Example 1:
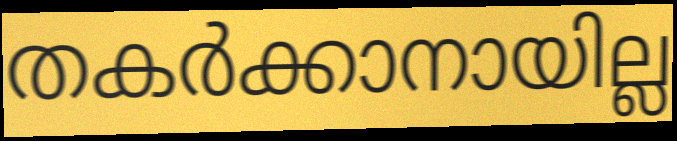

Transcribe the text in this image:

തകർക്കാനായില്ല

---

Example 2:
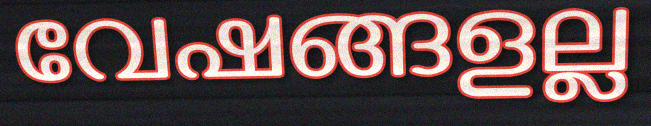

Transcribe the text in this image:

വേഷങ്ങളല്ല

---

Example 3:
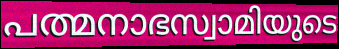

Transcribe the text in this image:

പത്മനാഭസ്വാമിയുടെ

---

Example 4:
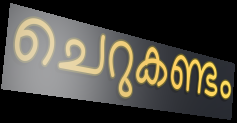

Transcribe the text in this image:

ചെറുകണ്ടം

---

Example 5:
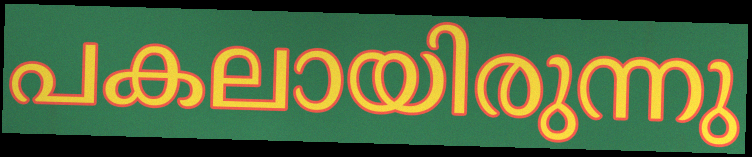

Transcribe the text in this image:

പകലായിരുന്നു